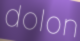
dolon